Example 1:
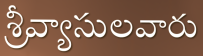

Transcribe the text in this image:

శ్రీవ్యాసులవారు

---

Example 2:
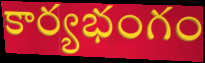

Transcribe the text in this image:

కార్యభంగం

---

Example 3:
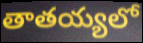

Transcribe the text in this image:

తాతయ్యలో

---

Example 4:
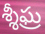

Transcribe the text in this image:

శ్శీఘ్ర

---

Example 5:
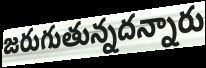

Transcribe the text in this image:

జరుగుతున్నదన్నారు